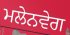
ਮਲੇਨਵੇਗ